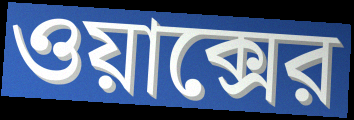
ওয়াক্সের